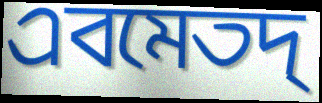
এবমেতদ্